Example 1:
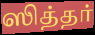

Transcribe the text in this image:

ஸித்தர்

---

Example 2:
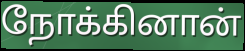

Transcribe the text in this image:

நோக்கினான்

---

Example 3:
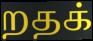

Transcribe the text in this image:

றதக்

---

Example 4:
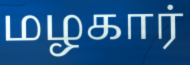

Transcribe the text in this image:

மழகார்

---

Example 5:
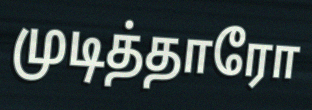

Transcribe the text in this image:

முடித்தாரோ